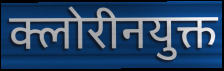
क्लोरीनयुक्त